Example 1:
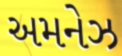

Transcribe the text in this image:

અમનેઝ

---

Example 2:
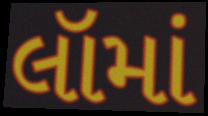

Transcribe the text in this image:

લૉમાં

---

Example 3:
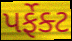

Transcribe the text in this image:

પર્ફેક્ટ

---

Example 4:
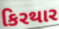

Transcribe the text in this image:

કિરથાર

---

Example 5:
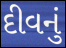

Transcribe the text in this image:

દીવનું